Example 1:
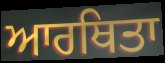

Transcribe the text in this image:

ਆਰਥਿਤਾ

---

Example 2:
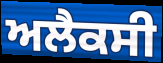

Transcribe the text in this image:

ਅਲੈਕਸੀ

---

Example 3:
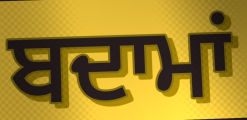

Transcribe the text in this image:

ਬਦਾਮਾਂ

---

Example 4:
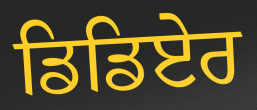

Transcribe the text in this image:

ਡਿਡਿਏਰ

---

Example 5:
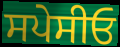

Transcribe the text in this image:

ਸਪੇਸੀਓ